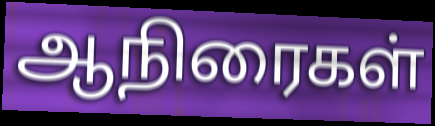
ஆநிரைகள்